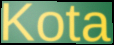
Kota